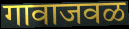
गावाजवळ